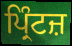
ਪ੍ਰਿੰਟਜ਼